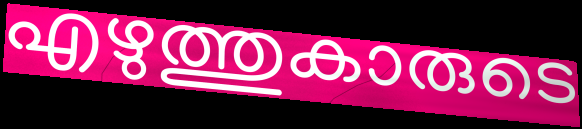
എഴുത്തുകാരുടെ